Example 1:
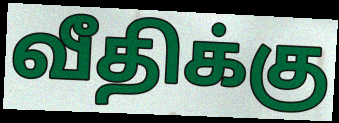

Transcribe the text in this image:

வீதிக்கு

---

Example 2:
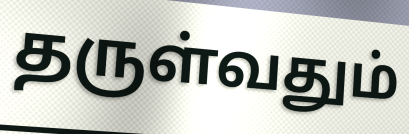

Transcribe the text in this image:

தருள்வதும்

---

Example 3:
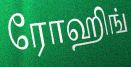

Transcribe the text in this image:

ரோஹிங்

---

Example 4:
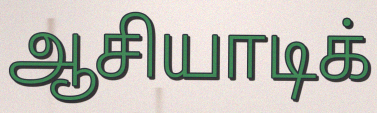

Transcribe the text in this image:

ஆசியாடிக்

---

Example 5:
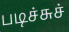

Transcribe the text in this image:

படிச்சுச்